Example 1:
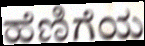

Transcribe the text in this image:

ಹೆಣಿಗೆಯ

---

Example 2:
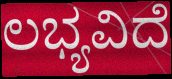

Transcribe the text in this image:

ಲಭ್ಯವಿದೆ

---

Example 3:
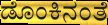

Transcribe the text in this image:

ಡೊಂಕಿನಂತೆ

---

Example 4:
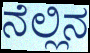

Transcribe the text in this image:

ನೆಲ್ಲಿನ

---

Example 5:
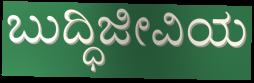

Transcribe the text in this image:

ಬುದ್ಧಿಜೀವಿಯ